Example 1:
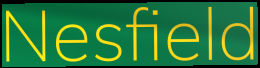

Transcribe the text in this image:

Nesfield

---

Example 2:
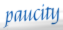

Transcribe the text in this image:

paucity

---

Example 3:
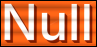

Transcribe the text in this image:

Null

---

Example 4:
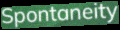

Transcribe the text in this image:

Spontaneity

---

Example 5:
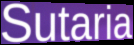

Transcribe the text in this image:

Sutaria